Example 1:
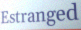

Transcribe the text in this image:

Estranged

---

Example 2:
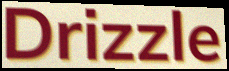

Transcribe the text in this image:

Drizzle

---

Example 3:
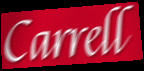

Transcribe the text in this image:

Carrell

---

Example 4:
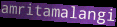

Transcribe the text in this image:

amritamalangi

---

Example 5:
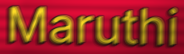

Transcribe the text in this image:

Maruthi